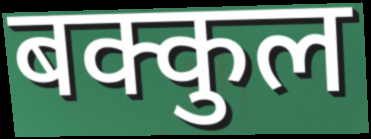
बक्कुल